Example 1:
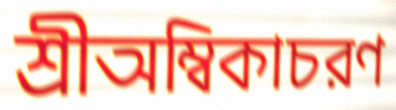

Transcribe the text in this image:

শ্রীঅম্বিকাচরণ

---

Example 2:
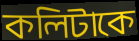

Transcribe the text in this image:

কলিটাকে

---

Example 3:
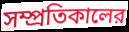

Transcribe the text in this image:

সম্প্রতিকালের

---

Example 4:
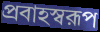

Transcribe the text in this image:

প্রবাহস্বরূপ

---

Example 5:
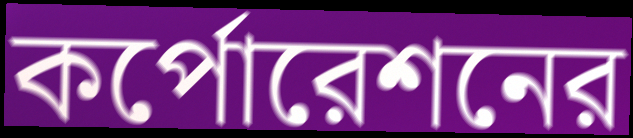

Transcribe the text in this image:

কর্পোরেশনের